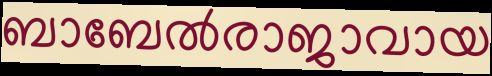
ബാബേൽരാജാവായ